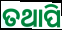
ତଥାପି